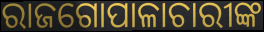
ରାଜଗୋପାଳାଚାରୀଙ୍କ